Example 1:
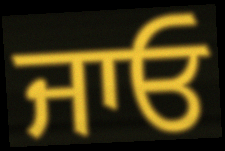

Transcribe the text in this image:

ਜਾਓ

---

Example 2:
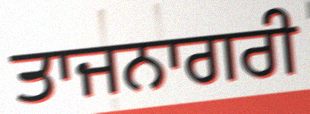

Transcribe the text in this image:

ਤਾਜਨਾਗਰੀ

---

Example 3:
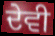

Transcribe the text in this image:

ਦੇਵੀ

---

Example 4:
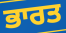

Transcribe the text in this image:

ਭਾਰਤ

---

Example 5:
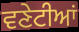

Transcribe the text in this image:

ਵਣੇਟੀਆਂ